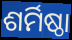
ଶର୍ମିଷ୍ଠା